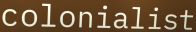
colonialist